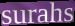
surahs